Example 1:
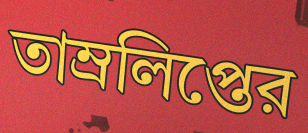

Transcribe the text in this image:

তাম্রলিপ্তের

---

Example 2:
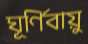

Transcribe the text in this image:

ঘূর্ণিবায়ু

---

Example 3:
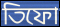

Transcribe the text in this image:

তিফো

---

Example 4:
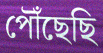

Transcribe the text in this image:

পৌঁছেছি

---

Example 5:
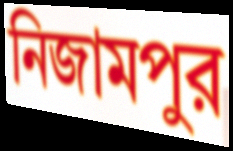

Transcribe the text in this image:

নিজামপুর